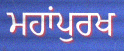
ਮਹਾਂਪੁਰਖ